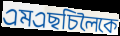
এমএছচিলৈকে